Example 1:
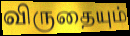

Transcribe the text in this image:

விருதையும்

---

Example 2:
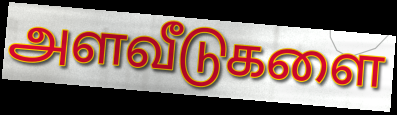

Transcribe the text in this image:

அளவீடுகளை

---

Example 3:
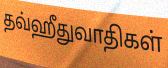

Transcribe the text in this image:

தவ்ஹீதுவாதிகள்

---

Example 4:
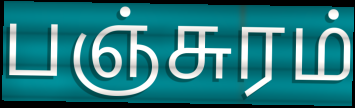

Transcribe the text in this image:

பஞ்சுரம்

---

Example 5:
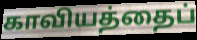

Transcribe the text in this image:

காவியத்தைப்